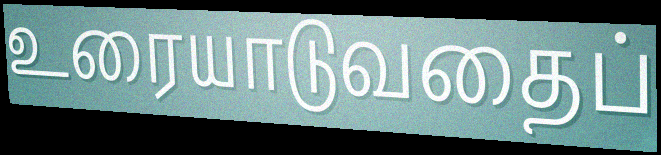
உரையாடுவதைப்